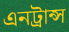
এনট্রান্স